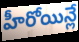
హీరోయిన్లే